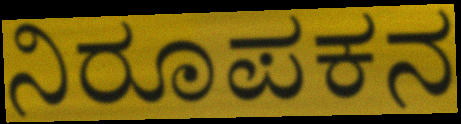
ನಿರೂಪಕನ